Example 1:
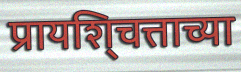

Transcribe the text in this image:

प्रायश्‍चित्ताच्या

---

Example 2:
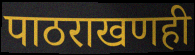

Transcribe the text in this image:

पाठराखणही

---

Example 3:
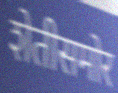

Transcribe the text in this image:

शेतीसमोर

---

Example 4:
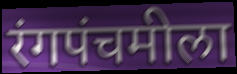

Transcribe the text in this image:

रंगपंचमीला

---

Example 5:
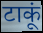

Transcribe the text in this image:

टाकूं